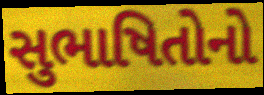
સુભાષિતોનો